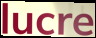
lucre